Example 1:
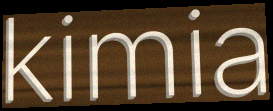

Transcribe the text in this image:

kimia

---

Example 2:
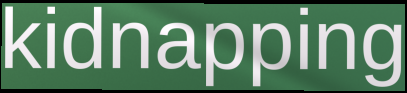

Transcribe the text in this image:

kidnapping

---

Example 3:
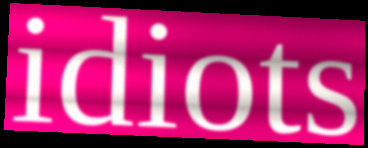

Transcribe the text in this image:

idiots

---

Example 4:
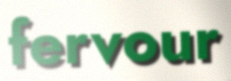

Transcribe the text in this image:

fervour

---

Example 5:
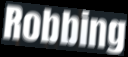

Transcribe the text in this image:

Robbing